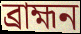
ব্ৰাহ্মন